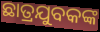
ଛାତ୍ରଯୁବକଙ୍କ